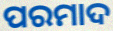
ପରମାଦ